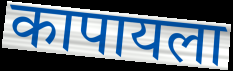
कापायला